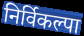
निर्विकल्पा